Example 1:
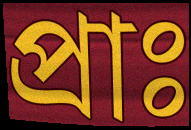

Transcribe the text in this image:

প্রাঃ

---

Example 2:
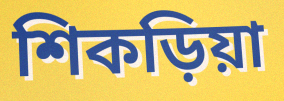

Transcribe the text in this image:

শিকড়িয়া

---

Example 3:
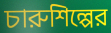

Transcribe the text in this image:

চারুশিল্পের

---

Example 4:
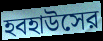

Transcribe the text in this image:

হবহাউসের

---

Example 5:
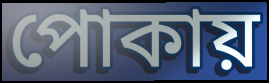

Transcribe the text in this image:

পোকায়